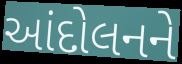
આંદોલનને